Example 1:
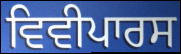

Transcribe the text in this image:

ਵਿਵੀਪਾਰਸ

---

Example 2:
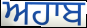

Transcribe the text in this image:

ਅਹਾਬ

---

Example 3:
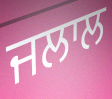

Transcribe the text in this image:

ਜਲਾਲ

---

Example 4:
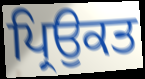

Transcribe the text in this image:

ਪ੍ਰਿਉਕਤ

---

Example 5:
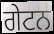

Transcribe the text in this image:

ਗੇਟਨ